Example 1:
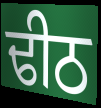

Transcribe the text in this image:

ਢੀਠ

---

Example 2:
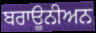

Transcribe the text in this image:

ਬਰਾਊਨੀਅਨ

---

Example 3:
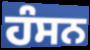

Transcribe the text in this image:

ਹੰਸਨ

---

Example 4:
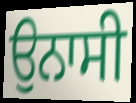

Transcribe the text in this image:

ਉਨਾਸੀ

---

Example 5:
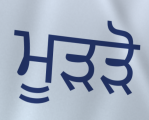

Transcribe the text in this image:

ਮੂੜੜੋ